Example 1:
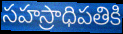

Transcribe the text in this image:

సహస్రాధిపతికి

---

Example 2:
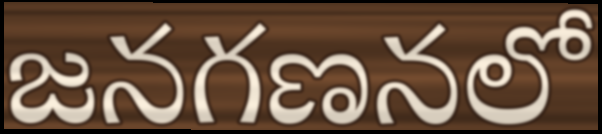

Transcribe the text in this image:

జనగణనలో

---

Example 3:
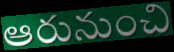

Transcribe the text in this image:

ఆరునుంచి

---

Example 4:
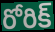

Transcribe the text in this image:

రోరిక్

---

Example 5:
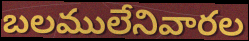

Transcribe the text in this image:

బలములేనివారల